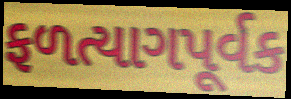
ફળત્યાગપૂર્વક